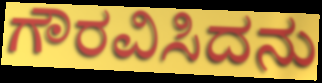
ಗೌರವಿಸಿದನು